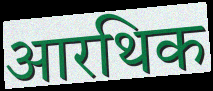
आरथिक